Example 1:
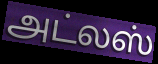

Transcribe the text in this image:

அட்லஸ்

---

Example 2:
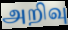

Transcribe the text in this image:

அறிவு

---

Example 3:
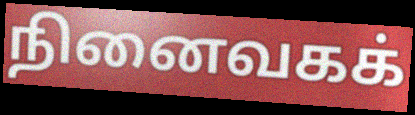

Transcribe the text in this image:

நினைவகக்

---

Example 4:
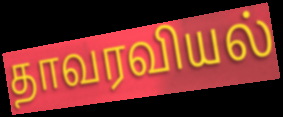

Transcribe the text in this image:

தாவரவியல்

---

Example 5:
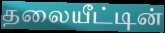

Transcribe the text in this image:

தலையீட்டின்